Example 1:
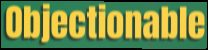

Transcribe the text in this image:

Objectionable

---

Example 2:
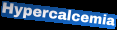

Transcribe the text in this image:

Hypercalcemia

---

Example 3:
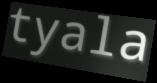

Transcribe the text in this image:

tyala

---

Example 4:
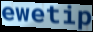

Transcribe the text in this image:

ewetip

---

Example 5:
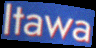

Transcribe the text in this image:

Itawa